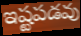
ఇష్టపడవు